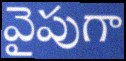
వైపుగా